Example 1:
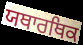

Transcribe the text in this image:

ਯਥਾਰਥਿਕ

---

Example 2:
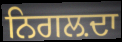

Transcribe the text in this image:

ਨਿਗਲ਼ਦਾ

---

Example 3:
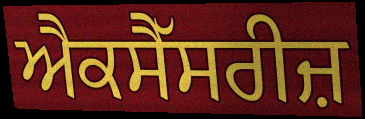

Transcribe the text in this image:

ਐਕਸੈੱਸਰੀਜ਼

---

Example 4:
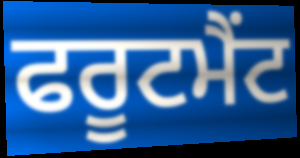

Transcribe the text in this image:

ਫਰੂਟਮੈਂਟ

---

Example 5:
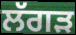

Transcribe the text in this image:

ਲੱਗੜ